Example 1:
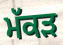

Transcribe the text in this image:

ਮੱਕੜ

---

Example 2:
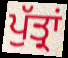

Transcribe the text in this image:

ਪੁੱਤ੍ਰਾਂ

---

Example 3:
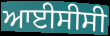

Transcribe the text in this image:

ਆਈਸੀਸੀ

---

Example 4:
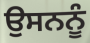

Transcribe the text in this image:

ਉਸਨਨੂੰ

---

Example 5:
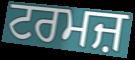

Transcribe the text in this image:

ਟਰਮਜ਼